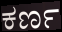
ಕರ್ಣ